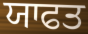
ਯਾਫਤ